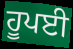
ਹੂਪਈ